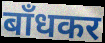
बाँधकर